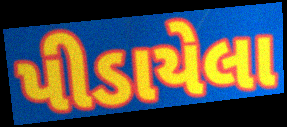
પીડાયેલા